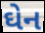
ઘેન